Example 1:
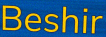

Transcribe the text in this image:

Beshir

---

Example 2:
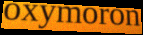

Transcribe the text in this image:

oxymoron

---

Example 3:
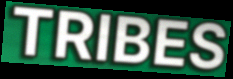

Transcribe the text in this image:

TRIBES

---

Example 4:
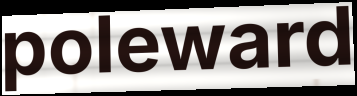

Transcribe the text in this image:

poleward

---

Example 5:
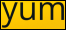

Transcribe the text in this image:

yum